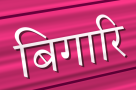
बिगारि